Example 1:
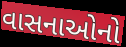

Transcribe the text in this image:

વાસનાઓનો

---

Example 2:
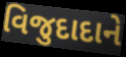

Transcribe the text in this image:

વિજુદાદાને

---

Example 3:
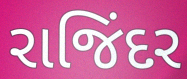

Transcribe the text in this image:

રાજિંદર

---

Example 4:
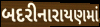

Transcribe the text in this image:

બદરીનારાયણમાં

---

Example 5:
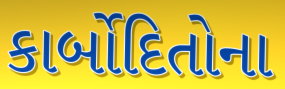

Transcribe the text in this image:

કાર્બોદિતોના